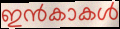
ഇൻകാകൾ